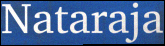
Nataraja